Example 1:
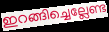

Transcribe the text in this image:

ഇറങ്ങിച്ചെല്ലേണ്ട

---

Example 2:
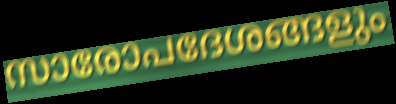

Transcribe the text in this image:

സാരോപദേശങ്ങളും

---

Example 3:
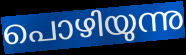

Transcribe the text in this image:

പൊഴിയുന്നു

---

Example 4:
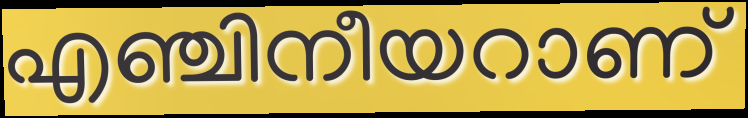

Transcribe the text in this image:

എഞ്ചിനീയറാണ്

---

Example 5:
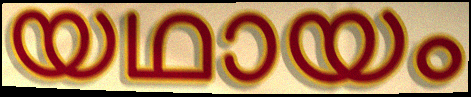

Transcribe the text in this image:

യഥായം